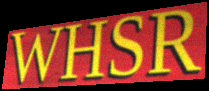
WHSR